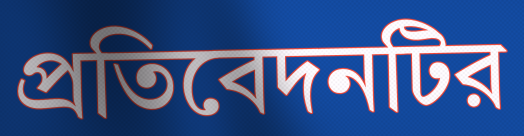
প্রতিবেদনটির